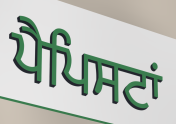
ਪੈਪਿਸਟਾਂ